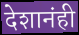
देशानंही